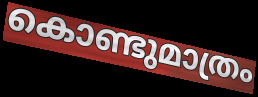
കൊണ്ടുമാത്രം